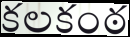
కలకంఠ